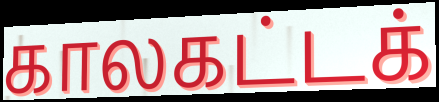
காலகட்டக்